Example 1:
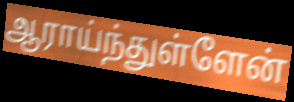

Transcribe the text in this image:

ஆராய்ந்துள்ளேன்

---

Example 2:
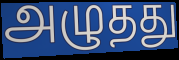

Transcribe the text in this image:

அழுதது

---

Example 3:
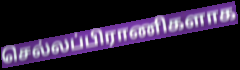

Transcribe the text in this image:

செல்லப்பிராணிகளாக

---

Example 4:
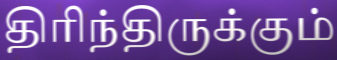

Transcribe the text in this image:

திரிந்திருக்கும்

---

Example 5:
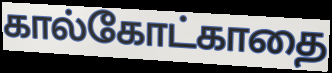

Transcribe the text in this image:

கால்கோட்காதை